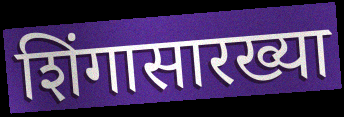
शिंगासारख्या